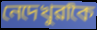
নেদেখুৱাকৈ